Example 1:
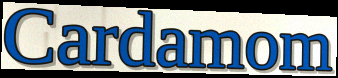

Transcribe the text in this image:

Cardamom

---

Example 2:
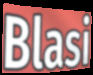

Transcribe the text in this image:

Blasi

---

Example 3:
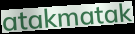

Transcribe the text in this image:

atakmatak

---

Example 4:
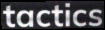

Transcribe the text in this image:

tactics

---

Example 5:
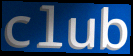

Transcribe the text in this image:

club